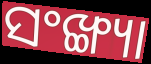
ସଂଙ୍ଖ୍ଯା